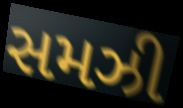
સમઝી